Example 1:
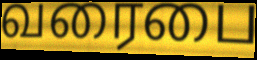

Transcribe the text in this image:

வரைபை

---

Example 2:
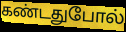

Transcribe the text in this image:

கண்டதுபோல்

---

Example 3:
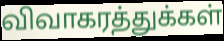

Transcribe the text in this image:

விவாகரத்துக்கள்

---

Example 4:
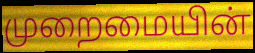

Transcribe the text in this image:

முறைமையின்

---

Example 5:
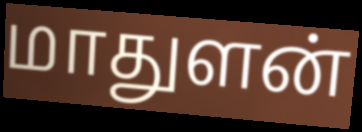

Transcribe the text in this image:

மாதுளன்